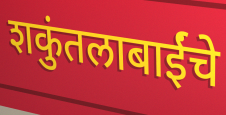
शकुंतलाबाईंचे